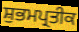
ਸ਼ੁਭਮਪ੍ਰਤੀਕ